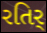
રતિર્